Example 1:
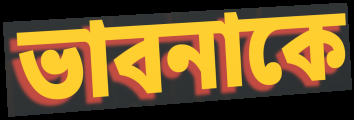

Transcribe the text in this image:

ভাবনাকে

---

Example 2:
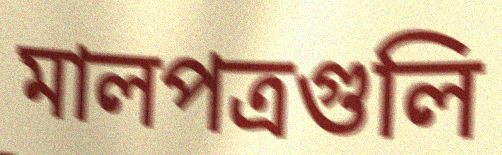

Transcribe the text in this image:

মালপত্রগুলি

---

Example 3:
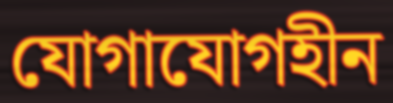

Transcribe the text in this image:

যোগাযোগহীন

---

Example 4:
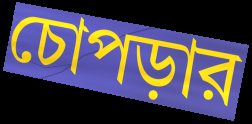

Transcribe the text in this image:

চোপড়ার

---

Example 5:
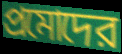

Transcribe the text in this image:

প্রমোদের